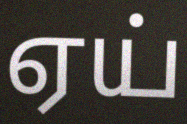
ஏய்